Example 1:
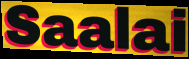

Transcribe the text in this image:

Saalai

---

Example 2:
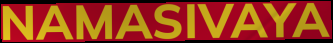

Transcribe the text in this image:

NAMASIVAYA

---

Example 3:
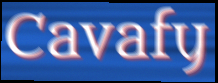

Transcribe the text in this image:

Cavafy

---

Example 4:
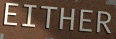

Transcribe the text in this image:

EITHER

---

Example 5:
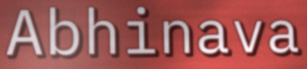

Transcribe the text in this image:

Abhinava